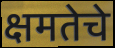
क्षमतेचे